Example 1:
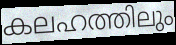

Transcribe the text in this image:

കലഹത്തിലും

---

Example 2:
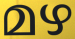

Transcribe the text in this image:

മഴ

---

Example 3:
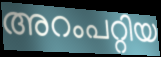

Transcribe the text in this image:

അറംപറ്റിയ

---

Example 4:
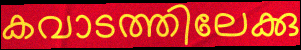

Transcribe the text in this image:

കവാടത്തിലേക്കു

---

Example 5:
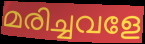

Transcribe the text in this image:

മരിച്ചവളേ